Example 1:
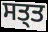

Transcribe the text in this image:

ਸਤ੍ਤ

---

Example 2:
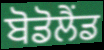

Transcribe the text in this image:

ਬੋਡੋਲੈਂਡ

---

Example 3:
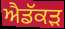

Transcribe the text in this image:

ਐਡੱਕੜ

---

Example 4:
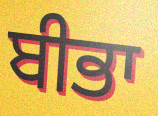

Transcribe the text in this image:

ਬੀਭਾ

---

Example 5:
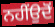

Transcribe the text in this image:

ਨਹੀਂਉਦੋਂ